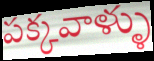
పక్కవాళ్ళు